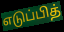
எடுப்பித்